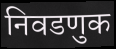
निवडणुक